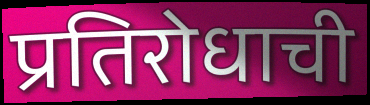
प्रतिरोधाची